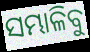
ସମ୍ଭାଳିବୁ